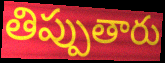
తిప్పుతారు